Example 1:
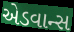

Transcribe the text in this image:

એડવાન્સ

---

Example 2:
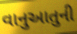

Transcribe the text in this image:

વાનુઆતુની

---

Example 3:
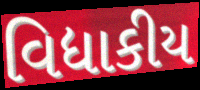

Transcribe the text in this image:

વિદ્યાકીય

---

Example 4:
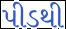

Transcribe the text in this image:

પીડથી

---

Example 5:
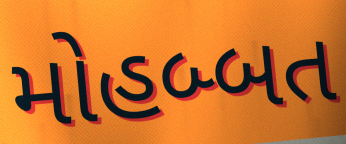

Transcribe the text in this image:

મોહબ્બત